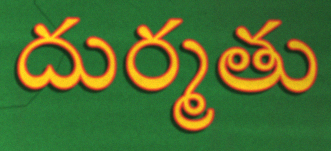
దుర్మతు